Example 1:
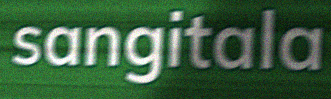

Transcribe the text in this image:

sangitala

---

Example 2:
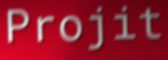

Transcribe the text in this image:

Projit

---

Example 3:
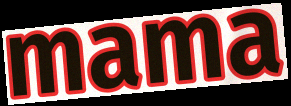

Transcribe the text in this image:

mama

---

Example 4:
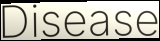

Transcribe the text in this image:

Disease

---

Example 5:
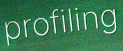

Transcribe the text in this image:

profiling